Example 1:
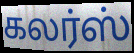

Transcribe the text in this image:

கலர்ஸ்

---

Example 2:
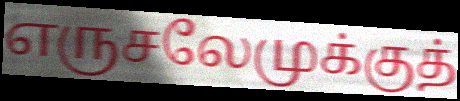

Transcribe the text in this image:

எருசலேமுக்குத்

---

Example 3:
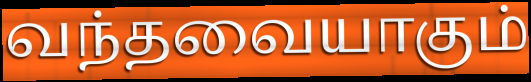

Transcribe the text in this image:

வந்தவையாகும்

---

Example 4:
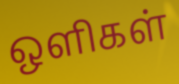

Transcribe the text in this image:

ஒளிகள்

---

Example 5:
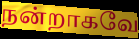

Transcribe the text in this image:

நன்றாகவே